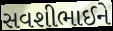
સવશીભાઈને